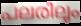
പലരിലും